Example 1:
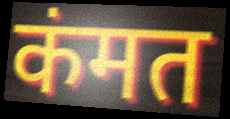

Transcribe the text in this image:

कंमत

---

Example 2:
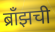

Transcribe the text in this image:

ब्राँझची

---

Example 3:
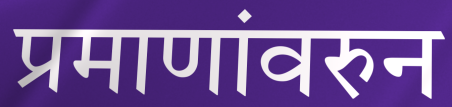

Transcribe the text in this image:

प्रमाणांवरुन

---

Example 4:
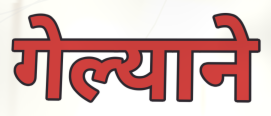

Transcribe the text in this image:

गेल्याने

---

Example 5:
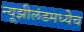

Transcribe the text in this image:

न्यूझीलंडमध्येच